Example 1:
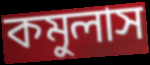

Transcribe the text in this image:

কমুলাস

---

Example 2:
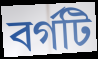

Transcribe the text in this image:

বর্গটি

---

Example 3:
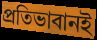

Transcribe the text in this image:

প্রতিভাবানই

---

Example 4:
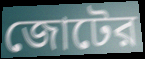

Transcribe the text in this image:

জোটের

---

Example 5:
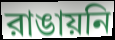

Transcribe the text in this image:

রাঙায়নি